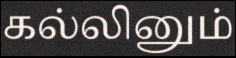
கல்லினும்